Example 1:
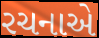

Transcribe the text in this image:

રચનાએ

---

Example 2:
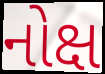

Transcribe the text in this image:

નોક્ષ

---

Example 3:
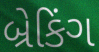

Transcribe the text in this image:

બ્રેકિંગ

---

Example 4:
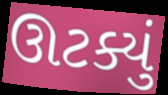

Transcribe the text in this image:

ઊટક્યું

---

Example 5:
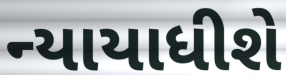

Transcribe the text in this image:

ન્યાયાધીશે